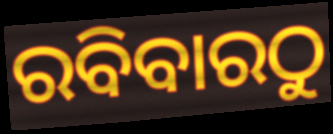
ରବିବାରଠୁ